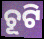
ଚୂଟି